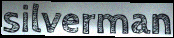
silverman